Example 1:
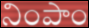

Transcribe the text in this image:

నింపాం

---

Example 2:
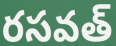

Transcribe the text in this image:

రసవత్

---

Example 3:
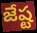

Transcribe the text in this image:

జేష్ట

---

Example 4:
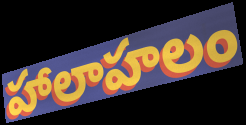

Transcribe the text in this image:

హాలాహలం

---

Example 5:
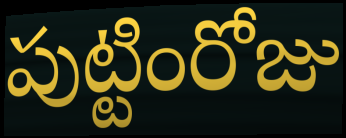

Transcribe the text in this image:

పుట్టింరోజు